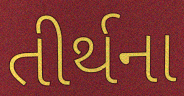
તીર્થના